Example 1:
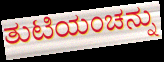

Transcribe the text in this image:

ತುಟಿಯಂಚನ್ನು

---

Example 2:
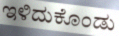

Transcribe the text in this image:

ಇಳಿದುಕೊಂಡು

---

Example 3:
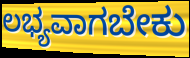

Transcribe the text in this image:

ಲಭ್ಯವಾಗಬೇಕು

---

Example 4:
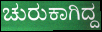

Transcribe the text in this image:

ಚುರುಕಾಗಿದ್ದ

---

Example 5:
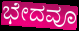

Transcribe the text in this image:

ಭೇದವೂ